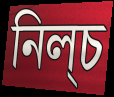
নিল্চ